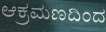
ಆಕ್ರಮಣದಿಂದ